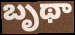
బృథా